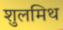
शुलमिथ